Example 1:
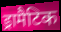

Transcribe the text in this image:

ड्रामैटिक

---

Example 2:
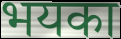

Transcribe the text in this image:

भयका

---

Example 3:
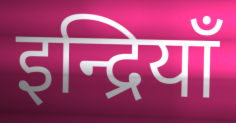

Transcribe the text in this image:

इन्द्रियाँ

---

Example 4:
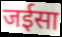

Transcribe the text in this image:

जईसा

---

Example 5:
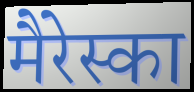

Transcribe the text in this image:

मैरेस्का